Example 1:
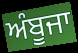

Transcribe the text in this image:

ਅੰਬੂਜਾ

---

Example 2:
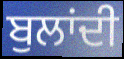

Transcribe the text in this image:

ਬੁਲਾਂਦੀ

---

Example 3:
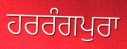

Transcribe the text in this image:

ਹਰਰੰਗਪੁਰਾ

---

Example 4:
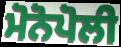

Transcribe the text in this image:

ਮੋਨੋਪੋਲੀ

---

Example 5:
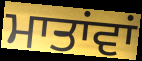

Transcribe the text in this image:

ਮਾਤਾਂਵਾਂ